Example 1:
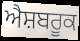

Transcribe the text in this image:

ਐਸ਼ਬਰੂਕ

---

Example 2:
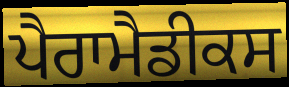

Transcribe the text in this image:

ਪੈਰਾਮੈਡੀਕਸ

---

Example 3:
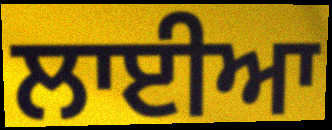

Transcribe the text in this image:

ਲਾਈਆ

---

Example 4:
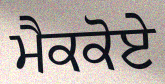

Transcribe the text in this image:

ਮੈਕਕੋਏ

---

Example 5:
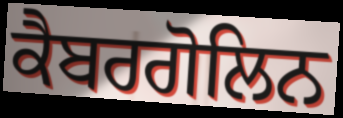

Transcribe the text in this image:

ਕੈਬਰਗੋਲਿਨ